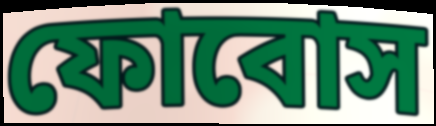
ফোবোস